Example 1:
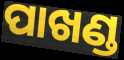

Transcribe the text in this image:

ପାଖଣ୍ଡ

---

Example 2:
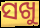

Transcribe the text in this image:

ସଖୁ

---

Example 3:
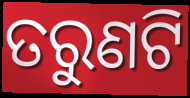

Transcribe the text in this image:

ତରୁଣଟି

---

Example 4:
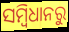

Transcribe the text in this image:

ସମ୍ବିଧାନରୁ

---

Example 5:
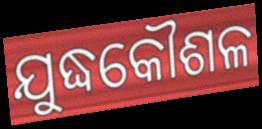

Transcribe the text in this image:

ଯୁଦ୍ଧକୌଶଳ